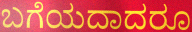
ಬಗೆಯದಾದರೂ